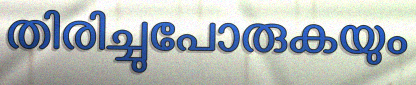
തിരിച്ചുപോരുകയും